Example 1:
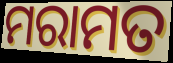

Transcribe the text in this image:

ମରାମତ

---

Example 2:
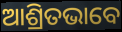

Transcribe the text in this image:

ଆଶ୍ରିତଭାବେ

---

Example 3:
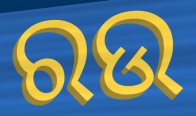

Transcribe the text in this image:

ରଉ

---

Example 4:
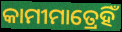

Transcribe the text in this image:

କାମୀମାତ୍ରେହିଁ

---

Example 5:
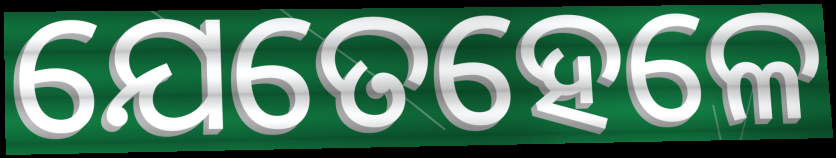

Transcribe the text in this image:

ଯେତେହେଳେ